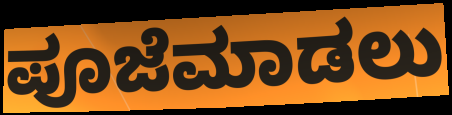
ಪೂಜೆಮಾಡಲು